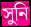
সুনি